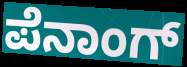
ಪೆನಾಂಗ್